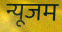
न्यूजम